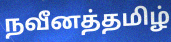
நவீனத்தமிழ்